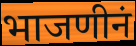
भाजणीनं